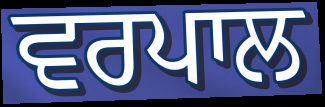
ਵਰਪਾਲ